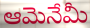
ఆమెనేమీ